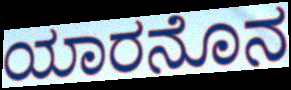
ಯಾರನೊನ